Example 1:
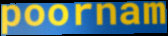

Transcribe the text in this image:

poornam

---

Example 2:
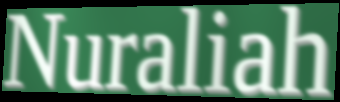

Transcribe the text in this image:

Nuraliah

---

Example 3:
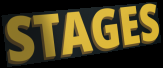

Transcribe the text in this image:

STAGES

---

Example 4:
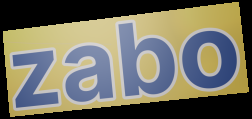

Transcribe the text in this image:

zabo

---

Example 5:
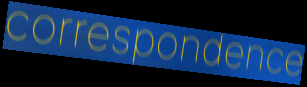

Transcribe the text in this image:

correspondence